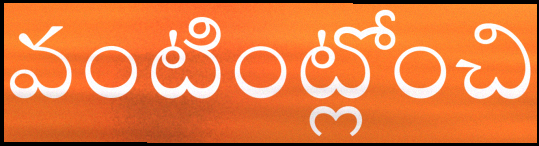
వంటింట్లోంచి